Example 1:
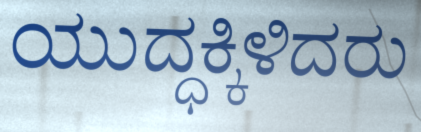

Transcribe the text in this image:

ಯುದ್ಧಕ್ಕಿಳಿದರು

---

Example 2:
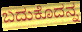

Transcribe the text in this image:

ಬದುಕೊದನ್ನ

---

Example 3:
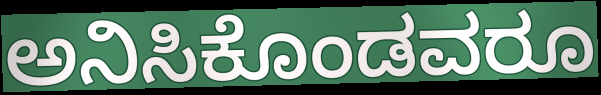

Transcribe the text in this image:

ಅನಿಸಿಕೊಂಡವರೂ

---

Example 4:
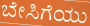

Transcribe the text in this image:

ಬೇಸಿಗೆಯು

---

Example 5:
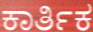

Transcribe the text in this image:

ಕಾರ್ತಿಕ